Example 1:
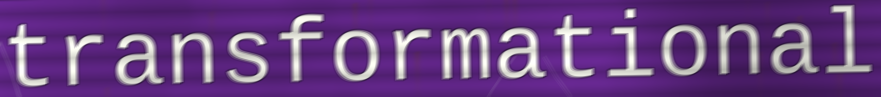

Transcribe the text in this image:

transformational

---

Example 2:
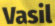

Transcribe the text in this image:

Vasil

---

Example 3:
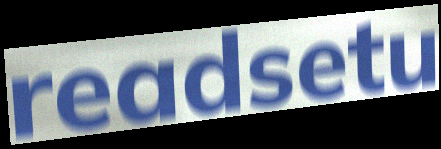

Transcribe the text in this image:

readsetu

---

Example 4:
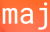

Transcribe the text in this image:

maj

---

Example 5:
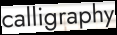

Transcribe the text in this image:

calligraphy